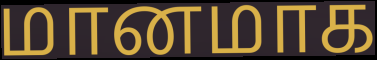
மானமாக